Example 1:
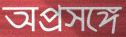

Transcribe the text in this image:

অপ্রসঙ্গে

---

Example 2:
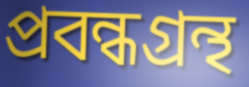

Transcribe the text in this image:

প্রবন্ধগ্রন্থ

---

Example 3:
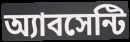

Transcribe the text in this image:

অ্যাবসেন্টি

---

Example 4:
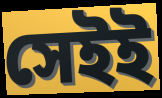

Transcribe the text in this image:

সেইই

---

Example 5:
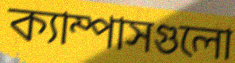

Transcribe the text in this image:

ক্যাম্পাসগুলো